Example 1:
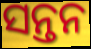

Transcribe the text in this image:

ସନ୍ତନ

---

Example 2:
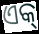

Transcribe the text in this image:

ଏକ୍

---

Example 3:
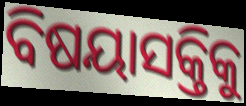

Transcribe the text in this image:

ବିଷୟାସକ୍ତିକୁ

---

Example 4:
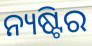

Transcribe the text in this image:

ନ୍ୟଷ୍ଟିର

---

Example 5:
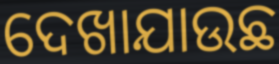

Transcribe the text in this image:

ଦେଖାଯାଉଛ